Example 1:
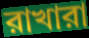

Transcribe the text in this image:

রাখারা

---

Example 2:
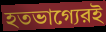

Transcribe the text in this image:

হতভাগ্যেরই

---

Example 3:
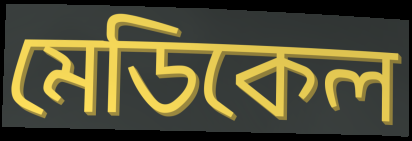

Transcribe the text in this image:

মেডিকেল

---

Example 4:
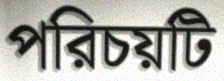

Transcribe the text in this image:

পরিচয়টি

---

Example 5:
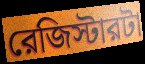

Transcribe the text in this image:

রেজিস্টারটা